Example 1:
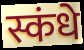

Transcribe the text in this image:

स्कंधे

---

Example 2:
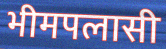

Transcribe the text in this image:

भीमपलासी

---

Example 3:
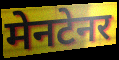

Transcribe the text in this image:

मेनटेनर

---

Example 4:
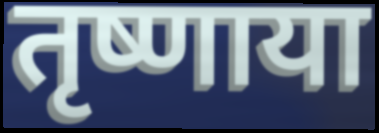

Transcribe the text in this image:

तृष्णाया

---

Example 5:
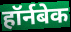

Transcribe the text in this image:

हॉर्नबेक